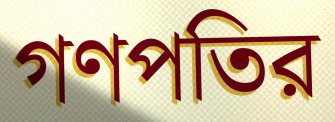
গণপতির